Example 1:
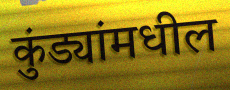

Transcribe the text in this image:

कुंड्यांमधील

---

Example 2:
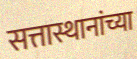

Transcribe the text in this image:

सत्तास्थानांच्या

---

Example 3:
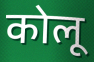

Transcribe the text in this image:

कोलू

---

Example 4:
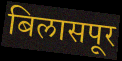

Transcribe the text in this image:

बिलासपूर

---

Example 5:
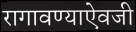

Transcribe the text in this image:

रागावण्याऐवजी